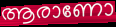
ആരാണോ